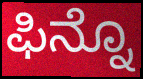
ಫಿನ್ನೊ